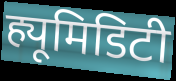
ह्यूमिडिटी